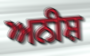
ਅਨੀਸ਼